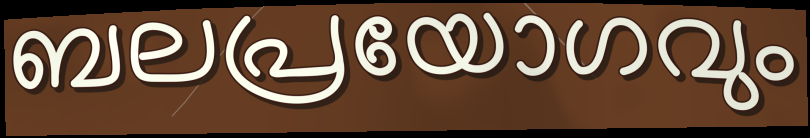
ബലപ്രയോഗവും